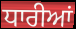
ਧਾਰੀਆਂ